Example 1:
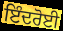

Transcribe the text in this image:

ਇੰਦਰੋਈ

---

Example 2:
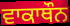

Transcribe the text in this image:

ਵਾਕਾਥੌਨ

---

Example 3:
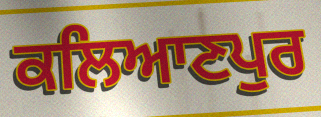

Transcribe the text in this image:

ਕਲਿਆਣਪੁਰ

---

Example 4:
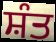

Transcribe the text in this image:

ਸ਼ੰਤ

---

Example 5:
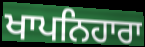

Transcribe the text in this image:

ਖਾਪਨਿਹਾਰਾ